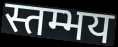
स्तम्भय